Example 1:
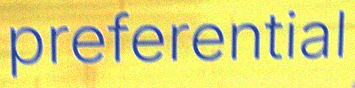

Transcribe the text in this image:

preferential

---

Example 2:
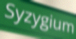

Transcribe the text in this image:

Syzygium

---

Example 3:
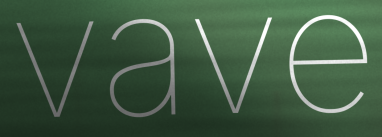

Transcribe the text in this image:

vave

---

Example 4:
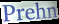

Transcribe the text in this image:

Prehn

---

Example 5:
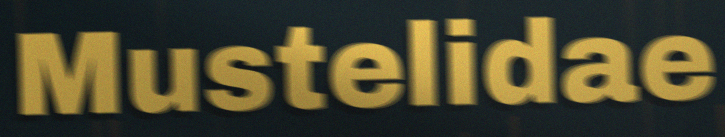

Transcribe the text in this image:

Mustelidae